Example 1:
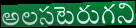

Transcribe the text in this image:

అలసటెరుగని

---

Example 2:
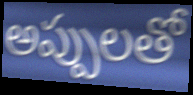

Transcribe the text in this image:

అప్పులతో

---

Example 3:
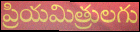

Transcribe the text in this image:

ప్రియమిత్రులగు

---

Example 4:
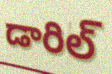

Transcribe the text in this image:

డారిల్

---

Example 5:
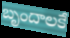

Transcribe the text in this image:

బృందాలకే